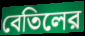
বেতিলের